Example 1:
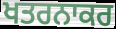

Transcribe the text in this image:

ਖਤਰਨਾਕਰ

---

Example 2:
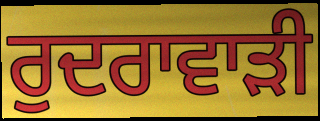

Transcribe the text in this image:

ਰੁਦਰਾਵਾੜੀ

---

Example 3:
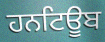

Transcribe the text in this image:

ਹਨਟਿਊਬ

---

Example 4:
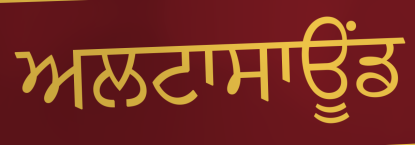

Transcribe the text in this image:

ਅਲਟਾਸਾਊਂਡ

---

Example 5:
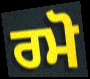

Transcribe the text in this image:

ਰਮੋ